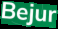
Bejur